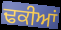
ਢਕੀਆਂ